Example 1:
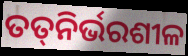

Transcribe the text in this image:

ତତ୍‍ନିର୍ଭରଶୀଳ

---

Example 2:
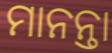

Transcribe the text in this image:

ମାନନ୍ତା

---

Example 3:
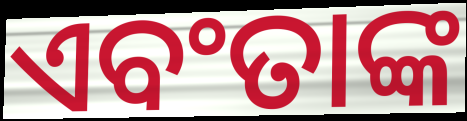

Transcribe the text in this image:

ଏବଂତାଙ୍କ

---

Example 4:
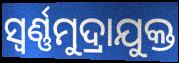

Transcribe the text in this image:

ସ୍ବର୍ଣ୍ଣମୁଦ୍ରାଯୁକ୍ତ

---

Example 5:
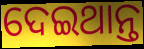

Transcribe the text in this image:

ଦେଇଥାନ୍ତ